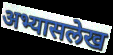
अभ्यासलेख